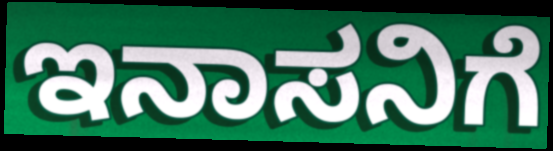
ಇನಾಸನಿಗೆ